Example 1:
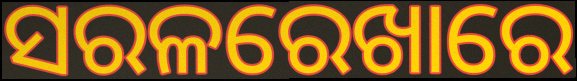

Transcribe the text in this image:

ସରଳରେଖାରେ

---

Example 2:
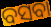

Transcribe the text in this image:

ବସବା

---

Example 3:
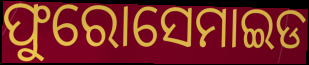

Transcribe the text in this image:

ଫୁରୋସେମାଇଡ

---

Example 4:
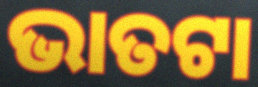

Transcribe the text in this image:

ଭାତଟା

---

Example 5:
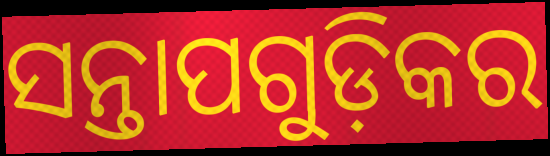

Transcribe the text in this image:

ସନ୍ତାପଗୁଡ଼ିକର